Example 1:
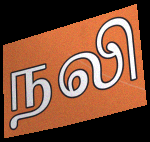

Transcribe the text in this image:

நலி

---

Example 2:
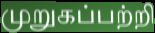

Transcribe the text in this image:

முறுகப்பற்றி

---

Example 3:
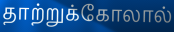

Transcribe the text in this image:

தாற்றுக்கோலால்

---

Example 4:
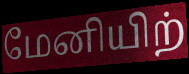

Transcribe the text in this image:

மேனியிற்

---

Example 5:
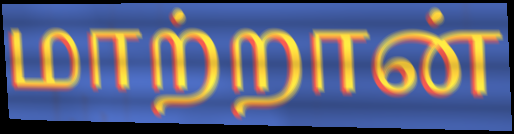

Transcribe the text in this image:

மாற்றான்